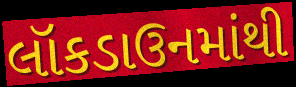
લૉકડાઉનમાંથી